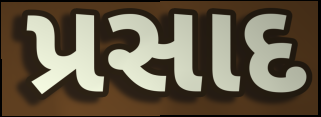
પ્રસાદ